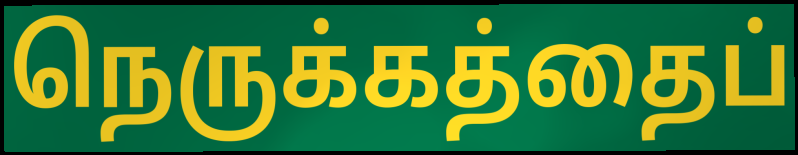
நெருக்கத்தைப்